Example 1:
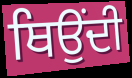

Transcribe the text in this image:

ਥਿਉਂਦੀ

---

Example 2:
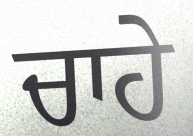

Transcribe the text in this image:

ਚਾਹੇ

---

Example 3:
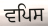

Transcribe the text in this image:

ਵਪਿਸ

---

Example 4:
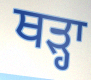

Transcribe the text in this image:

ਥੜ੍ਹਾ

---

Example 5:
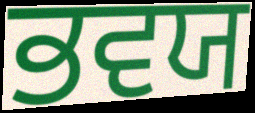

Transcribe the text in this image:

ਭਵਯ